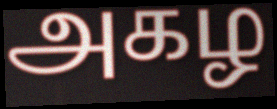
அகழ